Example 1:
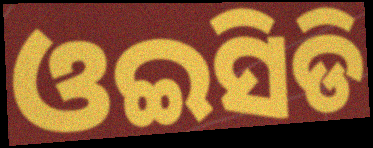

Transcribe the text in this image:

ଓଇସିଡି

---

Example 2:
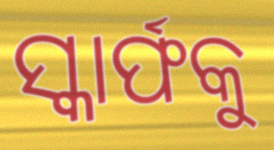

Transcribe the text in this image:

ସ୍କାର୍ଫକୁ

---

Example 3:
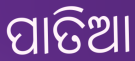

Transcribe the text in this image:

ପାତିଆ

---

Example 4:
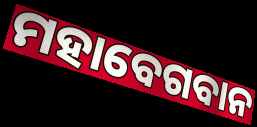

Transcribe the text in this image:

ମହାବେଗବାନ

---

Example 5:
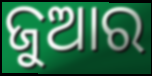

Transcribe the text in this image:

ଜୁଆର